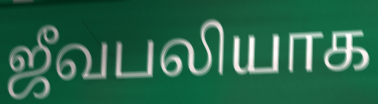
ஜீவபலியாக